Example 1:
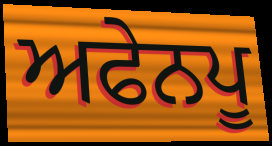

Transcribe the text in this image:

ਅਫੇਨਪੂ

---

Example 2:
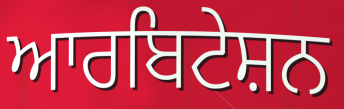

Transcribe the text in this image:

ਆਰਬਿਟੇਸ਼ਨ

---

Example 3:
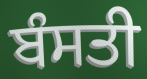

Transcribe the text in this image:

ਬੰਸਤੀ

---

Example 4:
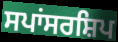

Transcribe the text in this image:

ਸਪਾਂਸਰਸ਼ਿਪ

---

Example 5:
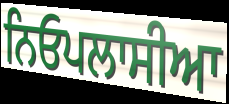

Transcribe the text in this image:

ਨਿਓਪਲਾਸੀਆ